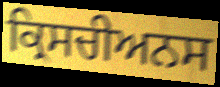
ਕ੍ਰਿਸਚੀਅਨਸ